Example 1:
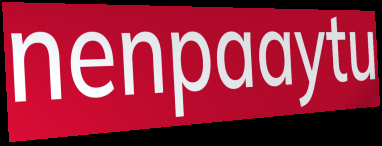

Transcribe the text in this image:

nenpaaytu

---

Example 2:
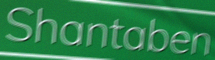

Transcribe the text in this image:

Shantaben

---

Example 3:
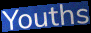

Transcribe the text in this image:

Youths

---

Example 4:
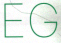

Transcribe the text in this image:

EG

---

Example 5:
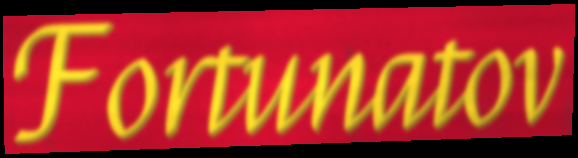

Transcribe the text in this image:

Fortunatov